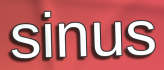
sinus